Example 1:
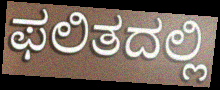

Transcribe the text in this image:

ಫಲಿತದಲ್ಲಿ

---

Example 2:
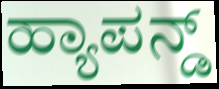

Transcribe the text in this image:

ಹ್ಯಾಪನ್ಡ್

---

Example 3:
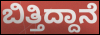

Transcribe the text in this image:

ಬಿತ್ತಿದ್ದಾನೆ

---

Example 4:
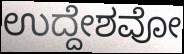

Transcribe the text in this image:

ಉದ್ದೇಶವೋ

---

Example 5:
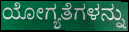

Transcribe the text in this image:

ಯೋಗ್ಯತೆಗಳನ್ನು